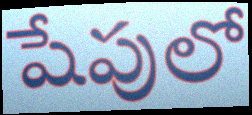
షేపులో